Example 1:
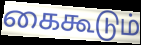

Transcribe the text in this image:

கைகூடும்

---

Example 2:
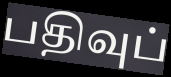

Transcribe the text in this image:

பதிவுப்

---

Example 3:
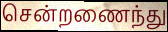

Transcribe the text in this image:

சென்றணைந்து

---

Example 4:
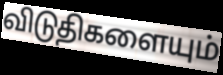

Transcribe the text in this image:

விடுதிகளையும்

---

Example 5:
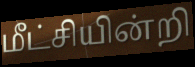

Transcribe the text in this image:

மீட்சியின்றி